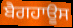
ਬੈਗਹਾਊਸ